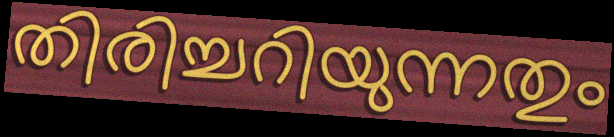
തിരിച്ചറിയുന്നതും